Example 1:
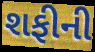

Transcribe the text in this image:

શફીની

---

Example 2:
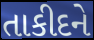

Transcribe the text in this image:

તાકીદને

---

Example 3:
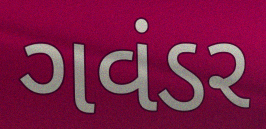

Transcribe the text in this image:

ગવંડર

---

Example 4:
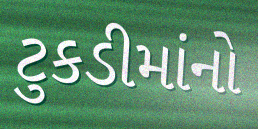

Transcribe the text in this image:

ટુકડીમાંનો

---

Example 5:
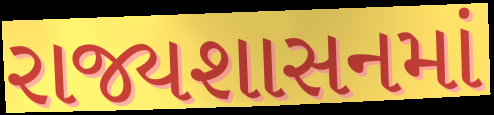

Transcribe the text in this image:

રાજ્યશાસનમાં